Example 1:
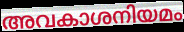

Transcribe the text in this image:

അവകാശനിയമം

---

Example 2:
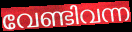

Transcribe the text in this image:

വേണ്ടിവന്ന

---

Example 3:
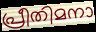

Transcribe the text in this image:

പ്രീതിമനാ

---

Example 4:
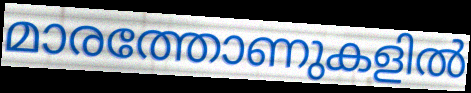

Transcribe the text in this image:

മാരത്തോണുകളിൽ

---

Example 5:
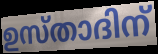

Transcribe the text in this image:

ഉസ്താദിന്